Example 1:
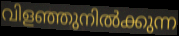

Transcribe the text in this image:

വിളഞ്ഞുനിൽക്കുന്ന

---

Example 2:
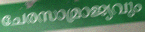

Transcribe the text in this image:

ചേരസാമ്രാജ്യവും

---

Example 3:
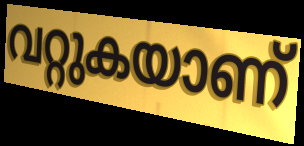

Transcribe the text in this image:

വറ്റുകയാണ്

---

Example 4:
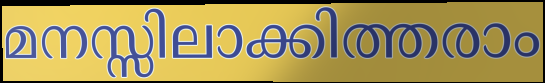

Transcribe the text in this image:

മനസ്സിലാക്കിത്തരാം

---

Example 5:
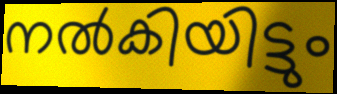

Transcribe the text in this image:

നൽകിയിട്ടും